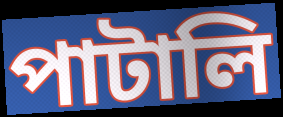
পাটালি